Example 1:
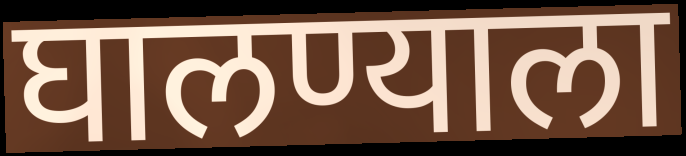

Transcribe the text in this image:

घालण्याला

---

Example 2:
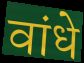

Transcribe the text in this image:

वांधे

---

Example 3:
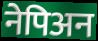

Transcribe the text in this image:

नेपिअन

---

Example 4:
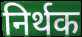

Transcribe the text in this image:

निर्थक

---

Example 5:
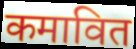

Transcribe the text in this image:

कमावित